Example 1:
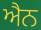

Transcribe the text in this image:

ਐਨ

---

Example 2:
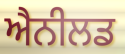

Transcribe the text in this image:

ਐਨੀਲਡ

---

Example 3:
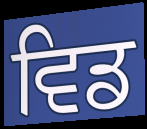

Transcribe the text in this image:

ਵਿਡ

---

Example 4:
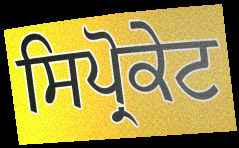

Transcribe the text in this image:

ਸਿਪ੍ਰੋਕੇਟ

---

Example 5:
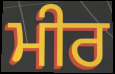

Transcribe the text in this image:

ਮੀਰ